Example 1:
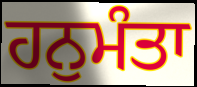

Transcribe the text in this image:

ਹਨੁਮੰਤਾ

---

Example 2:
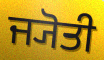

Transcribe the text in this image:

ਜ੍ਯੋਤੀ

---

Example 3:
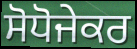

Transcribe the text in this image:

ਸੋਧੋਜੇਕਰ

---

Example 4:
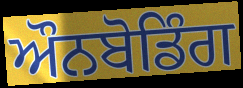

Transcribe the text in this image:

ਔਨਬੋਡਿੰਗ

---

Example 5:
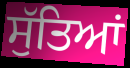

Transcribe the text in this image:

ਸੁੱਤਿਆਂ